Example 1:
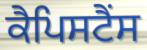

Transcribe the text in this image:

ਕੈਪਿਸਟੈਂਸ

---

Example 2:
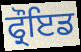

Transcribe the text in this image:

ਫ੍ਰੌਇਡ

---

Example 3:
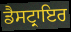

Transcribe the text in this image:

ਡੈਸਟ੍ਰਾਇਰ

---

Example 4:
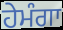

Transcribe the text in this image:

ਹੇਮੰਗਾ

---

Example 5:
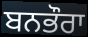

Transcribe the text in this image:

ਬਨਭੌਰਾ